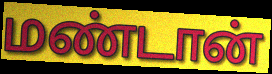
மண்டான்